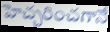
హెచ్చరించగానే